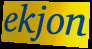
ekjon